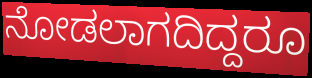
ನೋಡಲಾಗದಿದ್ದರೂ